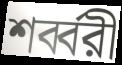
শর্ব্বরী